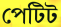
পেটিট